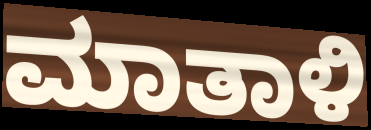
ಮಾತಾಳಿ